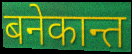
बनेकान्त